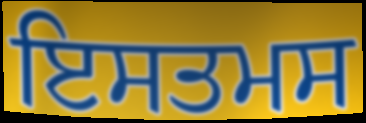
ਇਸਤਮਸ